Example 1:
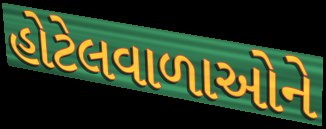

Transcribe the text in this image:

હોટેલવાળાઓને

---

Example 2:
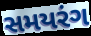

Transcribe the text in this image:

સમયરંગ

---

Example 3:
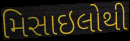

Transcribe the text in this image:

મિસાઇલોથી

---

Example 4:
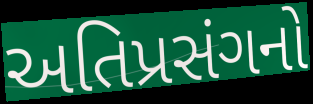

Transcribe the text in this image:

અતિપ્રસંગનો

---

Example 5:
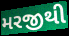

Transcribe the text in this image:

મરજીથી